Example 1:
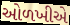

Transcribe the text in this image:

ઓળખીએ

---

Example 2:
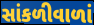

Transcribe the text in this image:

સાંકળીવાળાં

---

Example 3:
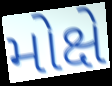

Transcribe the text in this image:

મોક્ષે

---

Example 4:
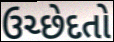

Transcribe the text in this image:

ઉચ્છેદતો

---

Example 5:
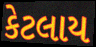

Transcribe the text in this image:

કેટલાય